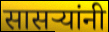
सासर्‍यांनी